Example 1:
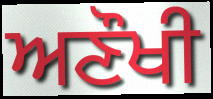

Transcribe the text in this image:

ਅਣੌਖੀ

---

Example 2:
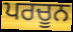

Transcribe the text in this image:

ਪਰਚੂਨ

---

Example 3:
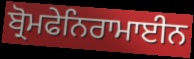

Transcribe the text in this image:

ਬ੍ਰੋਮਫੇਨਿਰਾਮਾਈਨ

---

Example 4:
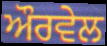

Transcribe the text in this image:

ਔਰਵੇਲ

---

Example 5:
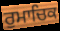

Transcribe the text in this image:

ਰੁਮਾਚਿਕ